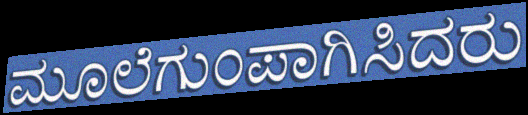
ಮೂಲೆಗುಂಪಾಗಿಸಿದರು